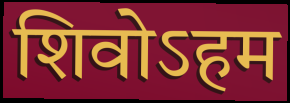
शिवोऽहम